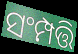
ସଂମ୍ପତ୍ତି